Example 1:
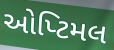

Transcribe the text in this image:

ઓપ્ટિમલ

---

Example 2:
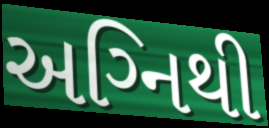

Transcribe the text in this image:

અગ્‍નિથી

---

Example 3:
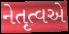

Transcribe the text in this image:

નેતૃત્વએ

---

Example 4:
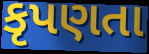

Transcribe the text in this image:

કૃપણતા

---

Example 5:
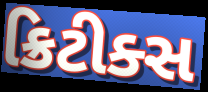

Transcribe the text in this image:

ક્રિટીક્સ